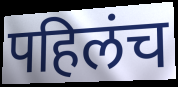
पहिलंच